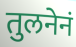
तुलनेनं